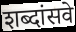
शब्दांसवे